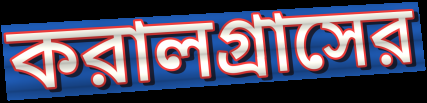
করালগ্রাসের